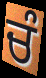
ਚੰ